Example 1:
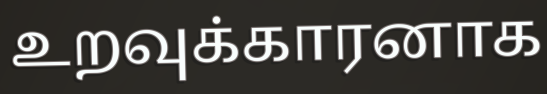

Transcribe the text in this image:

உறவுக்காரனாக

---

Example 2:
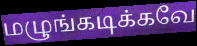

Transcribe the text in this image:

மழுங்கடிக்கவே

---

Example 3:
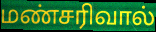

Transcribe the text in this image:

மண்சரிவால்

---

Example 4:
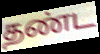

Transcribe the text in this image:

தண்ட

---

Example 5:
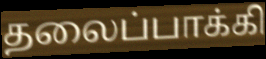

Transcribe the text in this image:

தலைப்பாக்கி